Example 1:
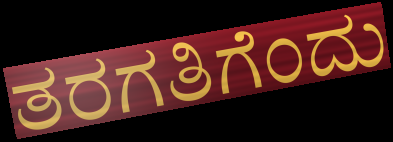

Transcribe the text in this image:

ತರಗತಿಗೆಂದು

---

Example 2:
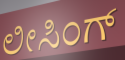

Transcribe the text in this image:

ಲೀಸಿಂಗ್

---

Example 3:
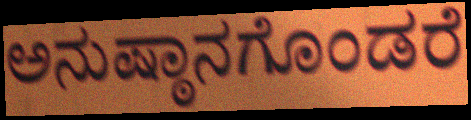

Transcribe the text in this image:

ಅನುಷ್ಠಾನಗೊಂಡರೆ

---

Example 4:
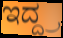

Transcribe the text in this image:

ಇದ್ದ್ರ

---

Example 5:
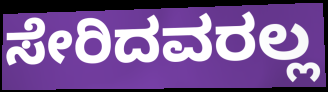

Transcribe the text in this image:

ಸೇರಿದವರಲ್ಲ